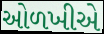
ઓળખીએ